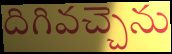
దిగివచ్చెను